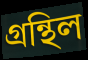
গ্ৰন্থিল